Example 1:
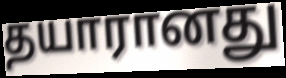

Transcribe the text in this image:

தயாரானது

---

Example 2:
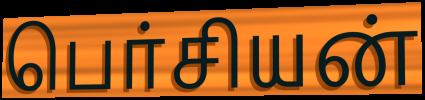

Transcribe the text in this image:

பெர்சியன்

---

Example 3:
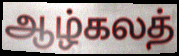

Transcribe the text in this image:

ஆழ்கலத்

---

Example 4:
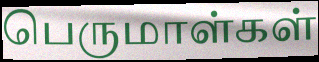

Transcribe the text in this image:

பெருமாள்கள்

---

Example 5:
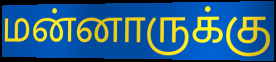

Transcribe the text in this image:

மன்னாருக்கு